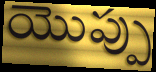
యొప్పు